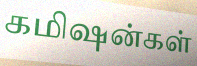
கமிஷன்கள்